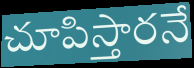
చూపిస్తారనే